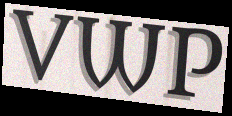
VWP